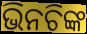
ଭିନଚିଙ୍କ